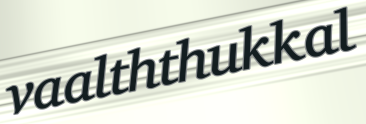
vaalththukkal